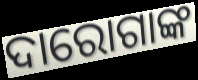
ଦାରୋଗାଙ୍କ